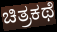
ಚಿತ್ರಕಥೆ